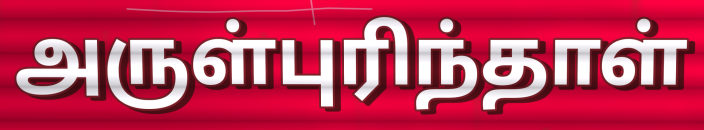
அருள்புரிந்தாள்